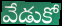
వేడుకో